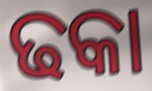
ଢକା